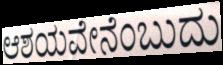
ಆಶಯವೇನೆಂಬುದು